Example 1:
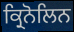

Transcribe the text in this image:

ਕ੍ਰਿਨੋਲਿਨ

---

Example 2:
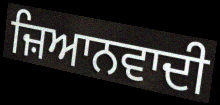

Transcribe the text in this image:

ਜ਼ਿਆਨਵਾਦੀ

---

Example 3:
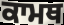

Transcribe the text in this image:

ਕਾਮਥ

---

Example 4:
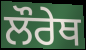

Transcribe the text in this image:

ਲੌਰੇਥ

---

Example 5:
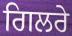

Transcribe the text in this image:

ਗਿਲਰੇ